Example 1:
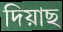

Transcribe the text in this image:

দিয়াছ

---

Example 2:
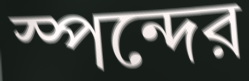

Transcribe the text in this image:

স্পন্দের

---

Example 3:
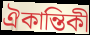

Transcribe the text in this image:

ঐকান্তিকী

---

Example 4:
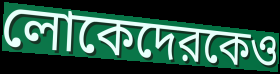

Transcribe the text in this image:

লোকেদেরকেও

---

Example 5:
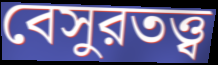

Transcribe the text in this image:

বেসুরতত্ত্ব